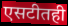
एसटीतही